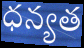
ధన్యత